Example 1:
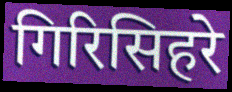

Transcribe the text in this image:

गिरिसिहरे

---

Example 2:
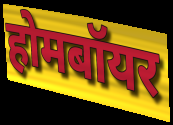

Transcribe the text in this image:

होमबॉयर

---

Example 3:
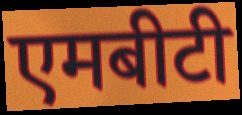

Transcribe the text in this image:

एमबीटी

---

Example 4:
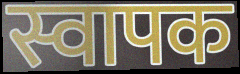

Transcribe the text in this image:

स्‍वापक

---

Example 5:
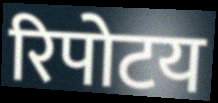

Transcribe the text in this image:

रिपोटय